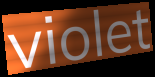
violet